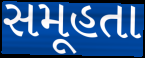
સમૂહતા